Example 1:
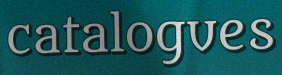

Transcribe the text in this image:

catalogues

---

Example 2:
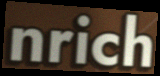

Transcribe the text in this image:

nrich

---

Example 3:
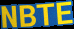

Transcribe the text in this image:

NBTE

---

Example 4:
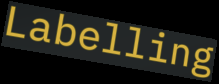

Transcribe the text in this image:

Labelling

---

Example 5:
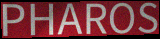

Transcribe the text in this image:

PHAROS